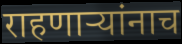
राहणाऱ्यांनाच